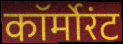
कॉर्मोरंट